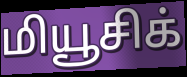
மியூசிக்